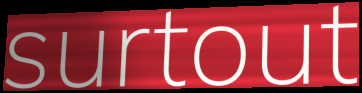
surtout